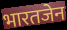
भारतजेन